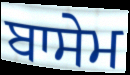
ਬਾਸੇਮ